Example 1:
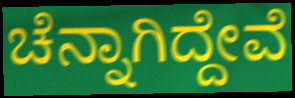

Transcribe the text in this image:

ಚೆನ್ನಾಗಿದ್ದೇವೆ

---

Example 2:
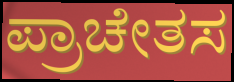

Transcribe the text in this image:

ಪ್ರಾಚೇತಸ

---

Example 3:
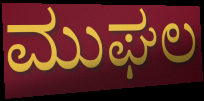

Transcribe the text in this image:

ಮುಘಲ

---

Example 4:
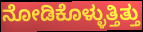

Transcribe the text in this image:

ನೋಡಿಕೊಳ್ಳುತ್ತಿತ್ತು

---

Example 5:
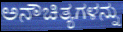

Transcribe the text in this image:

ಅನೌಚಿತ್ಯಗಳನ್ನು